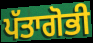
ਪੱਤਾਗੋਭੀ